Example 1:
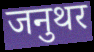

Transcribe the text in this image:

जनुथर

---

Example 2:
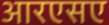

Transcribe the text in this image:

आरएसए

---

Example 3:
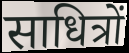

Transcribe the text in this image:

साधित्रों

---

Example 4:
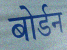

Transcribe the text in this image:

बोर्डन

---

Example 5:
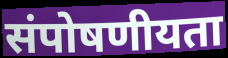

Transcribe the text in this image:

संपोषणीयता